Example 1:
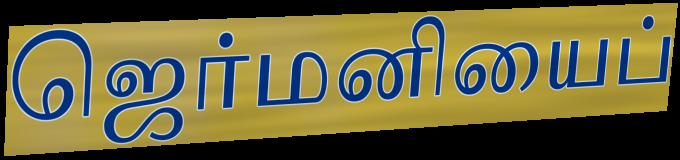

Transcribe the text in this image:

ஜெர்மனியைப்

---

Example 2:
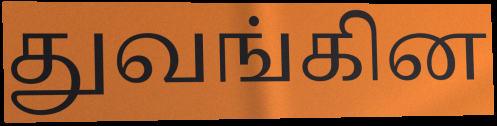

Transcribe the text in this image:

துவங்கின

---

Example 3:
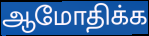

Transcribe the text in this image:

ஆமோதிக்க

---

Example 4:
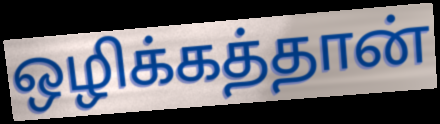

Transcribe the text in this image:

ஒழிக்கத்தான்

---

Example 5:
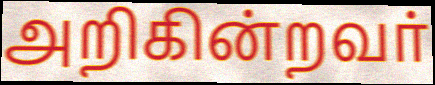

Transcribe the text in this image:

அறிகின்றவர்